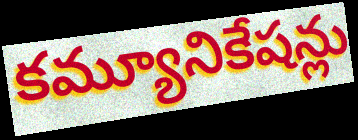
కమ్యూనికేషన్లు